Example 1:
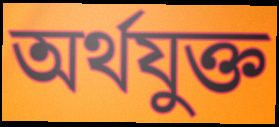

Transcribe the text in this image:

অৰ্থযুক্ত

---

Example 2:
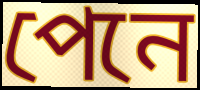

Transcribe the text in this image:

পেনে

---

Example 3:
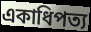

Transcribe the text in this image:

একাধিপত্য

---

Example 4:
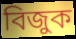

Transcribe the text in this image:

বিজুক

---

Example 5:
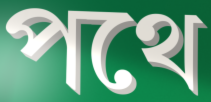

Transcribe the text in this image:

পথে